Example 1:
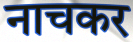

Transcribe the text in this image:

नाचकर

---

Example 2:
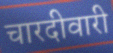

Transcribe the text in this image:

चारदीवारी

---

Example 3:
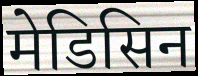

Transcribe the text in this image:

मेडिसिन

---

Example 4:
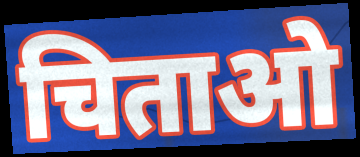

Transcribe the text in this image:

चिताओ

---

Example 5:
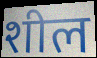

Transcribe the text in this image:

शील